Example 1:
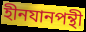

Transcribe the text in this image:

হীনযানপন্থী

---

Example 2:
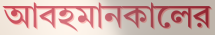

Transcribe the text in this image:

আবহমানকালের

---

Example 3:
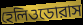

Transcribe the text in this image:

হেলিওডোরাস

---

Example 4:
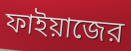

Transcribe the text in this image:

ফাইয়াজের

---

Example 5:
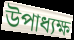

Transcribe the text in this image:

উপাধ্যক্ষ